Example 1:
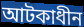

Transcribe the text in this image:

আটকাধীন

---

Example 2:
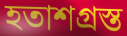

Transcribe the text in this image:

হতাশগ্ৰস্ত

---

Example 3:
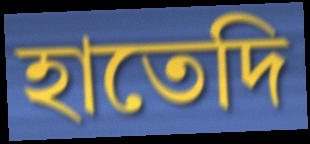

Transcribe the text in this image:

হাতেদি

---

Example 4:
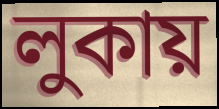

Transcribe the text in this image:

লুকায়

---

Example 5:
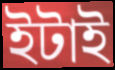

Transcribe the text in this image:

ইটাই